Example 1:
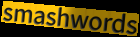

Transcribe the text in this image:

smashwords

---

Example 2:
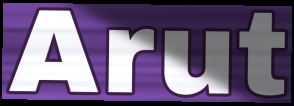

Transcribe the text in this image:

Arut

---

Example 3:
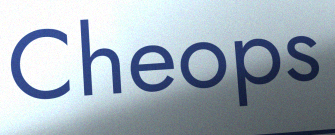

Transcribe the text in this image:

Cheops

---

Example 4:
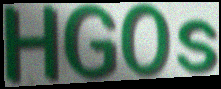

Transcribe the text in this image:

HGOs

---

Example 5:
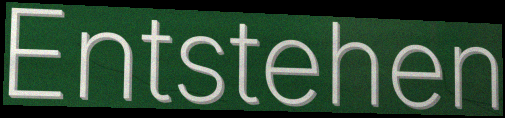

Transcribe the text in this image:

Entstehen